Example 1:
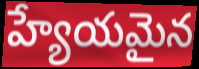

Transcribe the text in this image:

హ్యేయమైన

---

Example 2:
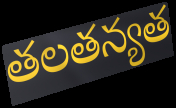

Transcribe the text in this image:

తలతన్యత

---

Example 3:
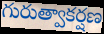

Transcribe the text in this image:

గురుత్వాకర్షణ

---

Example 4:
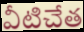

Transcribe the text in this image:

వీటిచేత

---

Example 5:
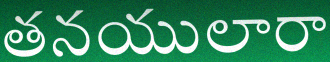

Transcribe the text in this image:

తనయులారా